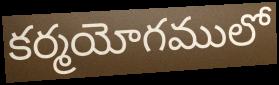
కర్మయోగములో